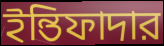
ইন্তিফাদার